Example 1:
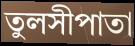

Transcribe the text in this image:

তুলসীপাতা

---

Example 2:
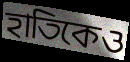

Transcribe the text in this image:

হাতিকেও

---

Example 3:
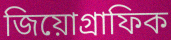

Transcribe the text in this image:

জিয়োগ্রাফিক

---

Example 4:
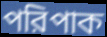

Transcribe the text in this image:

পরিপাক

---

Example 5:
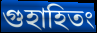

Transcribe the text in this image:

গুহাহিতং